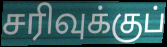
சரிவுக்குப்